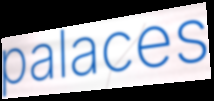
palaces